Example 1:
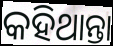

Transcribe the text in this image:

କହିଥାନ୍ତା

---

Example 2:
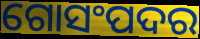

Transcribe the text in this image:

ଗୋସଂପଦର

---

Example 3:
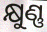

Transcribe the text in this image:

କ୍ଷୁଣ୍ଣ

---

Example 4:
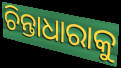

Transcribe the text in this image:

ଚିନ୍ତାଧାରାକୁ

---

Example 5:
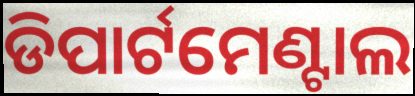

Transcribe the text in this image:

ଡିପାର୍ଟମେଣ୍ଟାଲ